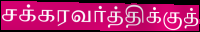
சக்கரவர்த்திக்குத்